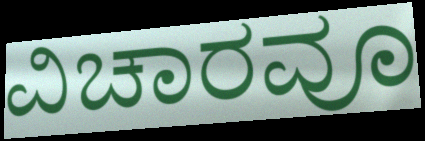
ವಿಚಾರವೂ